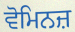
ਵੋਮਿਨਜ਼